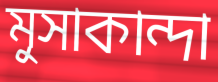
মুসাকান্দা